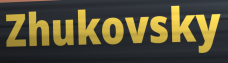
Zhukovsky